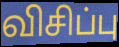
விசிப்பு